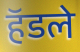
हॅडले